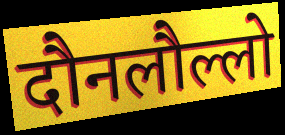
दौनलौल्लो